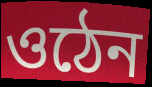
ওঠেন